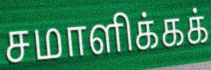
சமாளிக்கக்